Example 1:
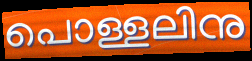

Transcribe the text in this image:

പൊള്ളലിനു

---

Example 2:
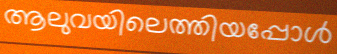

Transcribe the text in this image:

ആലുവയിലെത്തിയപ്പോൾ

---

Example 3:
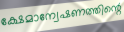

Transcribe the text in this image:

ക്ഷേമാന്വേഷണത്തിന്റെ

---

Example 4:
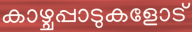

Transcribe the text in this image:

കാഴ്ചപ്പാടുകളോട്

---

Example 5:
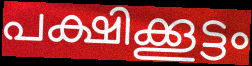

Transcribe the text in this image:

പക്ഷിക്കൂട്ടം